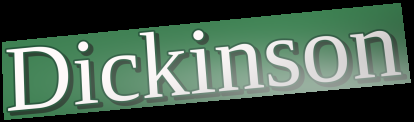
Dickinson